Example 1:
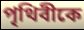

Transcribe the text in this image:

পৃথিবীকে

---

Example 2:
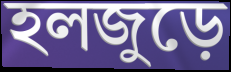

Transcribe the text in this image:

হলজুড়ে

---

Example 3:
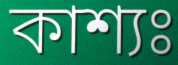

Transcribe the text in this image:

কাশ্যঃ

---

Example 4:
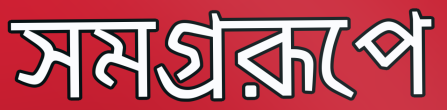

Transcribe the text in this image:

সমগ্ররূপে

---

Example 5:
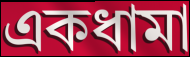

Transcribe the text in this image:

একধামা